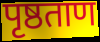
पृष्ठताण